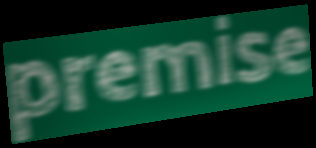
premise